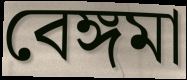
বেঙ্গমা